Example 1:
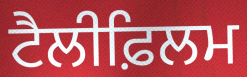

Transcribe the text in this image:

ਟੈਲੀਫ਼ਿਲਮ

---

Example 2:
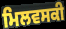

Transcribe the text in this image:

ਮਿਲਵਸਕੀ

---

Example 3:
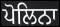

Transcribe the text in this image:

ਪੋਲਿਨਾ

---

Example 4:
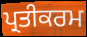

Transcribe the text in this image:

ਪ੍ਰਤੀਕਰਮ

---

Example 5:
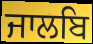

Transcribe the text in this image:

ਜਾਲਬਿ